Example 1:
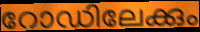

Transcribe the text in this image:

റോഡിലേക്കും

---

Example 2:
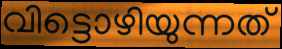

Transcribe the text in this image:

വിട്ടൊഴിയുന്നത്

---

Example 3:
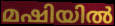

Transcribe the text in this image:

മഷിയിൽ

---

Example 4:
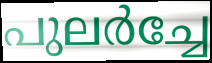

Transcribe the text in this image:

പുലർച്ചേ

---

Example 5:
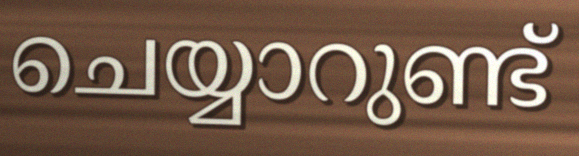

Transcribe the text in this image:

ചെയ്യാറുണ്ട്